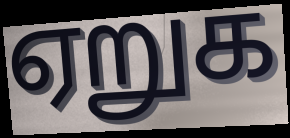
ஏறுக